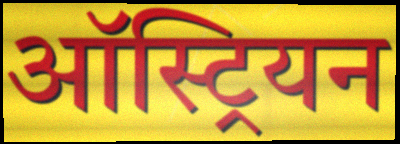
ऑस्ट्रियन